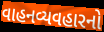
વાહનવ્યવહારનો